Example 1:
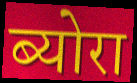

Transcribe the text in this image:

ब्योरा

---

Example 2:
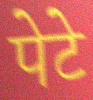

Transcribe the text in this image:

पेटे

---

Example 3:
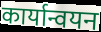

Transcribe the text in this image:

कार्यान्वयन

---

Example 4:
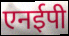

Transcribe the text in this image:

एनईपी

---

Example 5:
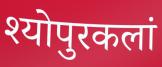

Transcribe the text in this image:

श्योपुरकलां